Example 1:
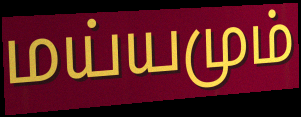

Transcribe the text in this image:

மய்யமும்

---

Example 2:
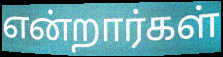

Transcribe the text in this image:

என்றார்கள்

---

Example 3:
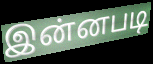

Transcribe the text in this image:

இன்னபடி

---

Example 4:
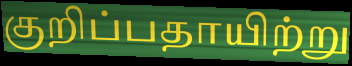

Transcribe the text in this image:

குறிப்பதாயிற்று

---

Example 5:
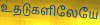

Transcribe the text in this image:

உதடுகளிலேயே